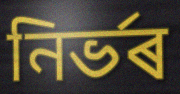
নিৰ্ভৰ